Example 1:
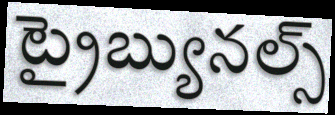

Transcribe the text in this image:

ట్రైబ్యునల్స్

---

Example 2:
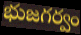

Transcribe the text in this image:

భుజగర్వం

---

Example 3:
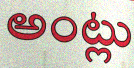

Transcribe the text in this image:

అంట్లు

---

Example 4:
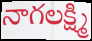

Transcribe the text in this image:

నాగలక్ష్మి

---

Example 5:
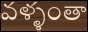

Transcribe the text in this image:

వళ్ళంతా